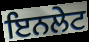
ਇਨਲੇਟ